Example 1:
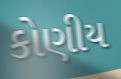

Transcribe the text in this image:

કોણીય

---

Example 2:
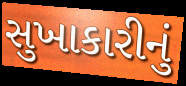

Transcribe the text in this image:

સુખાકારીનું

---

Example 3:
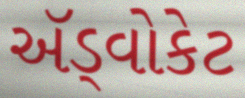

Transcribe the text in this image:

ઍડ્વોકેટ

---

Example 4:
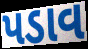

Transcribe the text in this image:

પડાવ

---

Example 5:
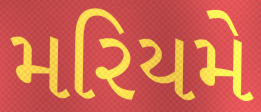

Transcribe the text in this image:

મરિયમે